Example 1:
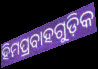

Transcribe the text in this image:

ହିମପ୍ରବାହଗୁଡ଼ିକ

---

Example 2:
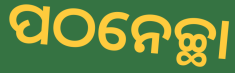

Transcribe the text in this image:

ପଠନେଚ୍ଛା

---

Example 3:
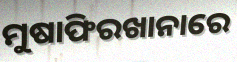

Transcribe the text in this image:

ମୁଷାଫିରଖାନାରେ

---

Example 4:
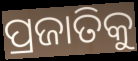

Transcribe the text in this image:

ପ୍ରଜାତିକୁ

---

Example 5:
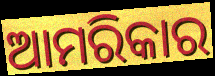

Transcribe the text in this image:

ଆମରିକାର